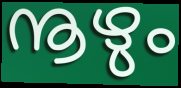
നൂഴും